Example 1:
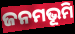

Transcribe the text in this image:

ଜନମଭୂମି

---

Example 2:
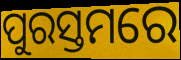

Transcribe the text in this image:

ପୁରସ୍ତମରେ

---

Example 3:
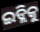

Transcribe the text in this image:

ଇଡ୍ଲିକୁ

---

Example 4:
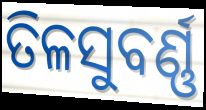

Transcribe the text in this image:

ତିଳସୁବର୍ଣ୍ଣ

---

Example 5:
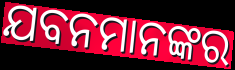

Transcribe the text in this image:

ଯବନମାନଙ୍କର